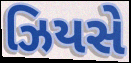
ઝિયસે